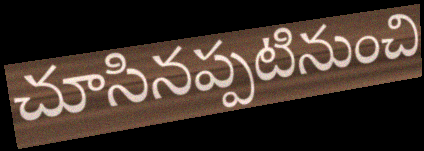
చూసినప్పటినుంచి